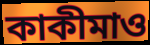
কাকীমাও